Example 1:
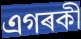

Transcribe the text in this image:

এগৰকী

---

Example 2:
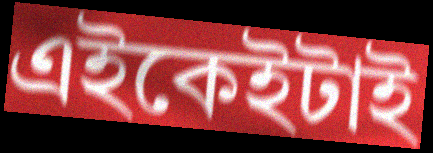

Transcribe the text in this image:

এইকেইটাই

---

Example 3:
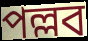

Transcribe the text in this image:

পল্লব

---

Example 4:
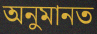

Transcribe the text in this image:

অনুমানত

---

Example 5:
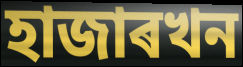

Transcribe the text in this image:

হাজাৰখন